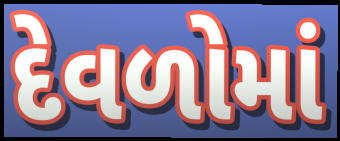
દેવળોમાં